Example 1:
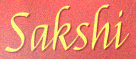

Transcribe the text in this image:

Sakshi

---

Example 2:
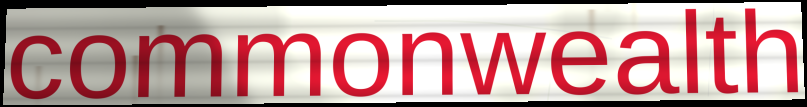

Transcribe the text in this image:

commonwealth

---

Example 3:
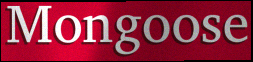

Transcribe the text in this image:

Mongoose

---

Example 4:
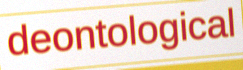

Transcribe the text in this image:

deontological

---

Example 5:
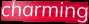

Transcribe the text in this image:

charming